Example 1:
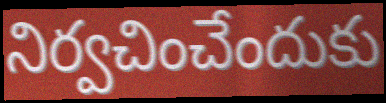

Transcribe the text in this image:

నిర్వచించేందుకు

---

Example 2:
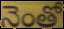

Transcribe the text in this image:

నెంతో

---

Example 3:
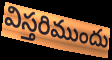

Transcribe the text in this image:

విస్తరిముందు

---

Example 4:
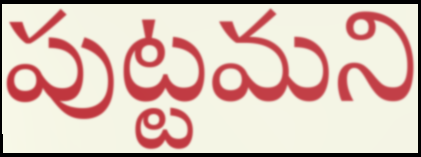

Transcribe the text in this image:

పుట్టమని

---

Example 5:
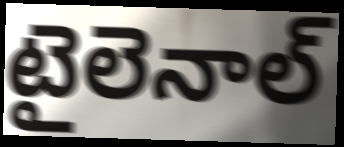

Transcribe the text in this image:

టైలెనాల్